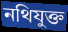
নথিযুক্ত